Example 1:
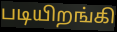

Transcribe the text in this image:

படியிறங்கி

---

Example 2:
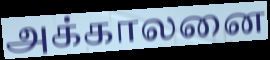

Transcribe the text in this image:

அக்காலனை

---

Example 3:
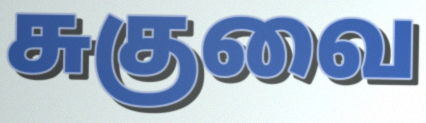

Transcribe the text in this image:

சுகுவை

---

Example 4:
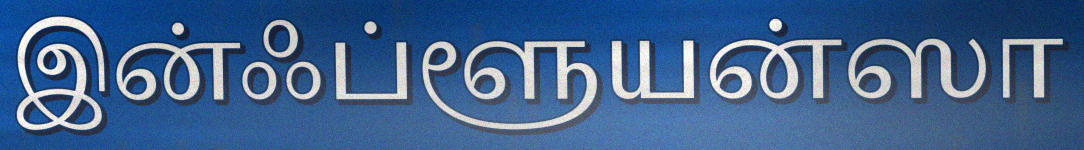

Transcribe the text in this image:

இன்ஃப்ளூயன்ஸா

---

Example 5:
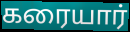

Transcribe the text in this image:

கரையார்